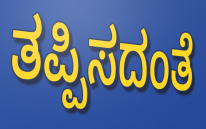
ತಪ್ಪಿಸದಂತೆ